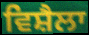
ਵਿਸ਼ੈਲਾ